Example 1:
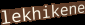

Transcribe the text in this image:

lekhikene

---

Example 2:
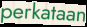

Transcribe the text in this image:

perkataan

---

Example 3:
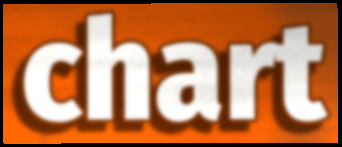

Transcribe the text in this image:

chart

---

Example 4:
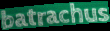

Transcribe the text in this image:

batrachus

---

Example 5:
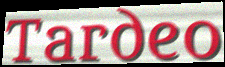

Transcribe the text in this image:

Tardeo